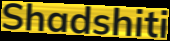
Shadshiti